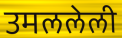
उमललेली